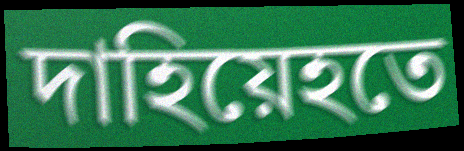
দাহিয়েহতে